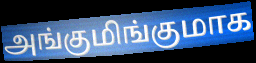
அங்குமிங்குமாக